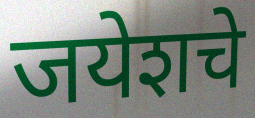
जयेशचे